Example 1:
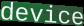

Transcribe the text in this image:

device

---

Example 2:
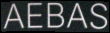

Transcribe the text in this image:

AEBAS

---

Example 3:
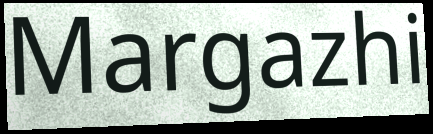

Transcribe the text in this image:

Margazhi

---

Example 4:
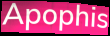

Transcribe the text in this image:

Apophis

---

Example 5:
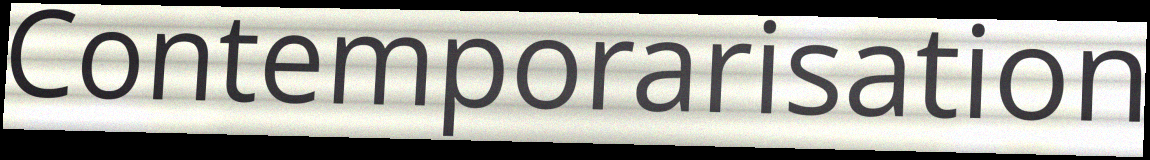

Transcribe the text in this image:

Contemporarisation